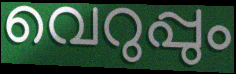
വെറുപ്പും